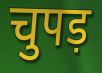
चुपड़